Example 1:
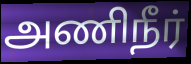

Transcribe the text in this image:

அணிநீர்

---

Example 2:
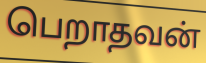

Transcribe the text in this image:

பெறாதவன்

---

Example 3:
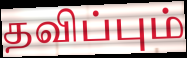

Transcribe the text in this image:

தவிப்பும்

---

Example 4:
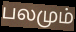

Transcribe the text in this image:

பலமும்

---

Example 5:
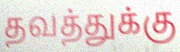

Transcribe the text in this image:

தவத்துக்கு